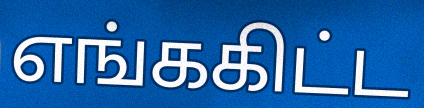
எங்ககிட்ட